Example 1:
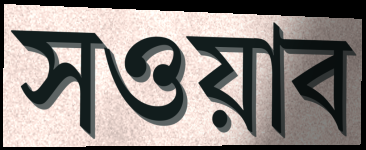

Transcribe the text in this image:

সওয়াব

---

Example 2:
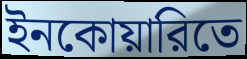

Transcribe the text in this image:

ইনকোয়ারিতে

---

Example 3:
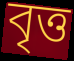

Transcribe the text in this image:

বৃত্ত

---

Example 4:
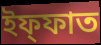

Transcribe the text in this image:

ইফ্ফাত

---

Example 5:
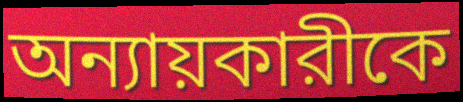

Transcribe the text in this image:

অন্যায়কারীকে